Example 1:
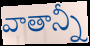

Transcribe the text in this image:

వాతాన్నీ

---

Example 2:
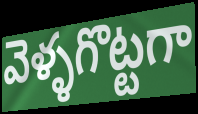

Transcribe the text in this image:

వెళ్ళగొట్టగా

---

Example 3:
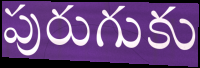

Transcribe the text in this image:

పురుగుకు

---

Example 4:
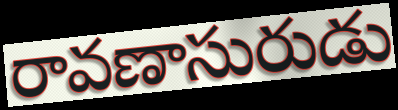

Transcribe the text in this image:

రావణాసురుడు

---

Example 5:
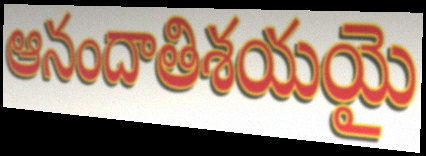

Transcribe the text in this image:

ఆనందాతిశయయై